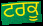
ਟਰਕੂ